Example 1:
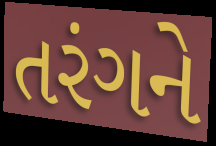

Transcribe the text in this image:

તરંગને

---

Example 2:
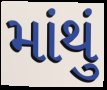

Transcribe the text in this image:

માંથું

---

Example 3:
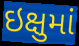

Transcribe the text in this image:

ઇક્ષુમાં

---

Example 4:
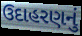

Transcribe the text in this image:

ઉદાહરણનું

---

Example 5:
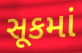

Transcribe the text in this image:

સૂકમાં